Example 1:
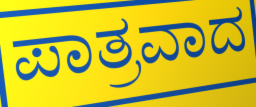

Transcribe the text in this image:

ಪಾತ್ರವಾದ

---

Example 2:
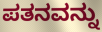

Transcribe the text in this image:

ಪತನವನ್ನು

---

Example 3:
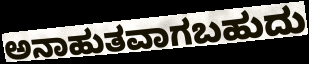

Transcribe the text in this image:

ಅನಾಹುತವಾಗಬಹುದು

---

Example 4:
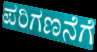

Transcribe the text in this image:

ಪರಿಗಣನೆಗೆ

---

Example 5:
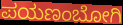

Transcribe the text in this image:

ಪಯಣಂಬೋಗಿ